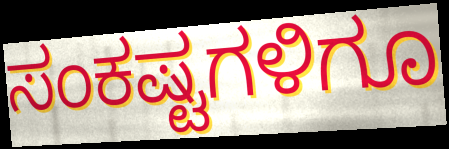
ಸಂಕಷ್ಟಗಳಿಗೂ